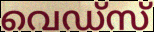
വെഡ്സ്